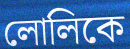
লোলিকে